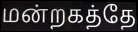
மன்றகத்தே